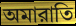
অমারাতি